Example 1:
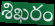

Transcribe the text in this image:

శిఖరం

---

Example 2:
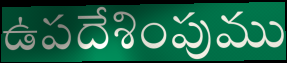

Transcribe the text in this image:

ఉపదేశింపుము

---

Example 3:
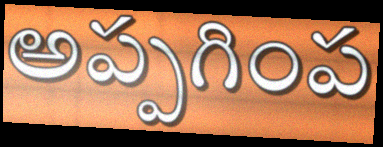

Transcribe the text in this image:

అప్పగింప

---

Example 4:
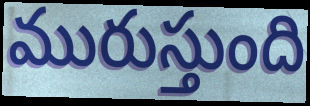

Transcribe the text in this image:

మురుస్తుంది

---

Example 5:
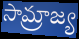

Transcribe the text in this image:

సామ్రాజ్య